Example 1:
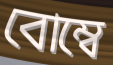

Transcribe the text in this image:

বোম্বে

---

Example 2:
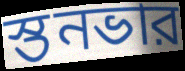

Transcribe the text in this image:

স্তনভার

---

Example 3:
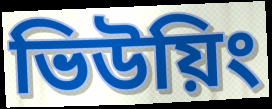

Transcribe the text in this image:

ভিউয়িং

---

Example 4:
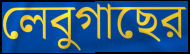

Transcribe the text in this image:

লেবুগাছের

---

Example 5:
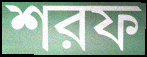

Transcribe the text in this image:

শরফ